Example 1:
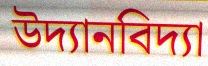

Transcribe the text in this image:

উদ্যানবিদ্যা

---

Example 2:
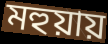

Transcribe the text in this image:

মহুয়ায়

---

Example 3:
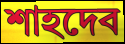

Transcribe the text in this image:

শাহদেব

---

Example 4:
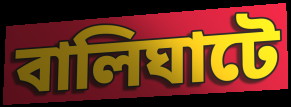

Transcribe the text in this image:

বালিঘাটে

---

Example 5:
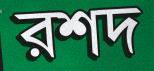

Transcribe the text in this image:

রশদ